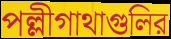
পল্লীগাথাগুলির